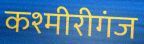
कश्मीरीगंज